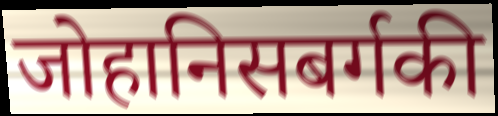
जोहानिसबर्गकी